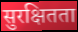
सुरक्षितता